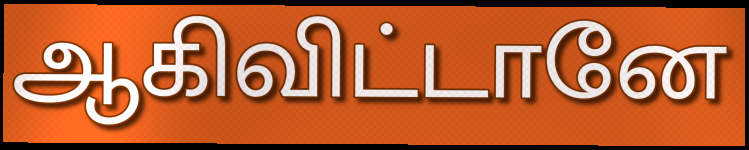
ஆகிவிட்டானே